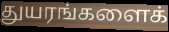
துயரங்களைக்